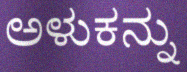
ಅಳುಕನ್ನು